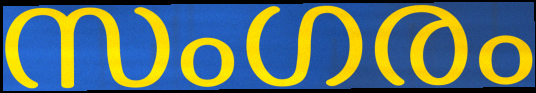
സംഗരം